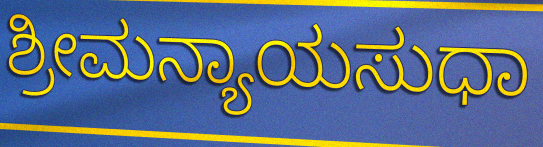
ಶ್ರೀಮನ್ಯಾಯಸುಧಾ